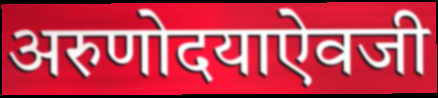
अरुणोदयाऐवजी